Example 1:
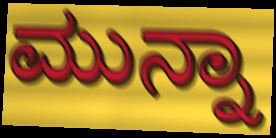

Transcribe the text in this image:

ಮುನ್ನಾ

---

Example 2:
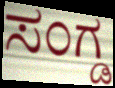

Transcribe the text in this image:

ಸಂಗ್ಡ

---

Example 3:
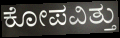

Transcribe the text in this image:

ಕೋಪವಿತ್ತು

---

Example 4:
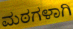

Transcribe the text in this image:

ಮಠಗಳಾಗಿ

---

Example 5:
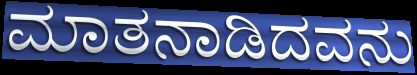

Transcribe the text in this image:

ಮಾತನಾಡಿದವನು